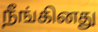
நீங்கினது